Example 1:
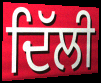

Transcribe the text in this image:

ਦਿੱਲੀ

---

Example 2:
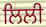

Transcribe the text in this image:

ਲਿਲੀ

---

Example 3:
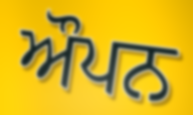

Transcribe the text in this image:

ਔਪਨ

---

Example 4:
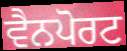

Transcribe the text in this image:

ਵੈਨਪੋਰਟ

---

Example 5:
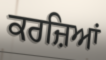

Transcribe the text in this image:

ਕਰਜ਼ਿਆਂ